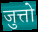
जुत्तो